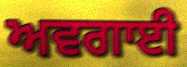
ਅਵਗਾਈ